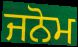
ਜਨੋਮ